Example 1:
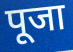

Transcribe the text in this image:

पूजा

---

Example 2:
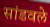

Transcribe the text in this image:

सांडवले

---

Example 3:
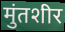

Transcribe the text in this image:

मुंतशीर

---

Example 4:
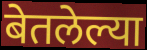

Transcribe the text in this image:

बेतलेल्या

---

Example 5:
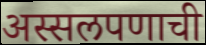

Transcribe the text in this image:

अस्सलपणाची